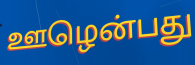
ஊழென்பது